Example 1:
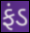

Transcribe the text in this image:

ફંડ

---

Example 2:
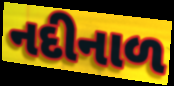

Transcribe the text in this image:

નદીનાળ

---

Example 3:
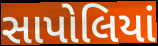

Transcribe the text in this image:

સાપોલિયાં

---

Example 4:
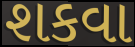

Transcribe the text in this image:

શકવા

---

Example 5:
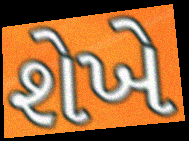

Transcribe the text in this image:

શેખે